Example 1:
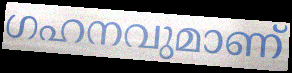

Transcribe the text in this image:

ഗഹനവുമാണ്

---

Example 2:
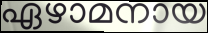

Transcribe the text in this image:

ഏഴാമനായ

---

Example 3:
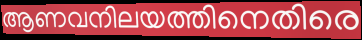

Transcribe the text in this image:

ആണവനിലയത്തിനെതിരെ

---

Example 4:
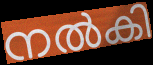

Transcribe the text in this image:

നൽകി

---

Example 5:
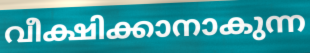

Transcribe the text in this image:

വീക്ഷിക്കാനാകുന്ന